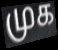
முக